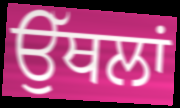
ਉੱਥਲਾਂ